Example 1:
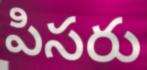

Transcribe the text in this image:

పిసరు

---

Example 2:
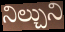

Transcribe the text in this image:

నిల్చుని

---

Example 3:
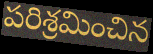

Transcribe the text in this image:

పరిశ్రమించిన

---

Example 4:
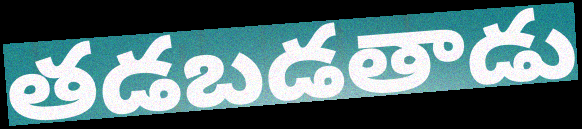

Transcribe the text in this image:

తడబడతాడు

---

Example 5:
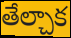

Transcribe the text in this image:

తేల్చాక